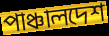
পাঞ্চালদেশ